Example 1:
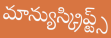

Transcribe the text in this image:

మాన్యుస్క్రిప్ట్స్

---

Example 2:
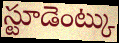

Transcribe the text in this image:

స్టూడెంట్కు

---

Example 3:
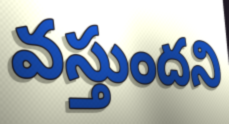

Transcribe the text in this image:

వస్తుందని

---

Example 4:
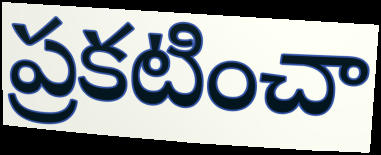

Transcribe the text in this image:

ప్రకటించా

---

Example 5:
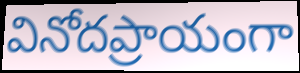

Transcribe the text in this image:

వినోదప్రాయంగా